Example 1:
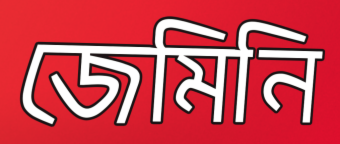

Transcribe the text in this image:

জেমিনি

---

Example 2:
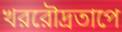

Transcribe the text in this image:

খররৌদ্রতাপে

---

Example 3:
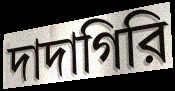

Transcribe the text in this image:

দাদাগিরি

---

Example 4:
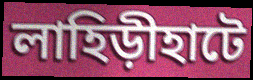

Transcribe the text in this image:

লাহিড়ীহাটে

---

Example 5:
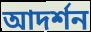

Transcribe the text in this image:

আদর্শন